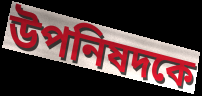
উপনিষদকে